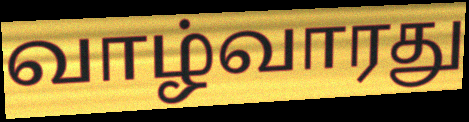
வாழ்வாரது